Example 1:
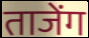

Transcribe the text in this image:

ताजेंग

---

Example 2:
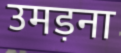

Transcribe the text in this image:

उमड़ना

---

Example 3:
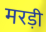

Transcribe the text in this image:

मरड़ी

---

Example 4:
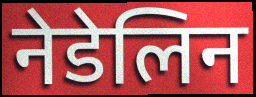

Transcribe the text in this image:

नेडेलिन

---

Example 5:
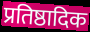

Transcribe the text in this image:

प्रतिष्ठादिक